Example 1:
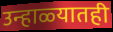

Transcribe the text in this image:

उन्हाळ्यातही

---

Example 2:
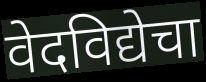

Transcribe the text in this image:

वेदविद्येचा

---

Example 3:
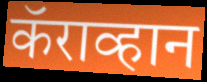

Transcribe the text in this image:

कॅराव्हान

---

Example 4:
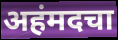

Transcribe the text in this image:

अहंमदचा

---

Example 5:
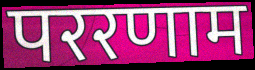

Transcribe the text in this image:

पररणाम